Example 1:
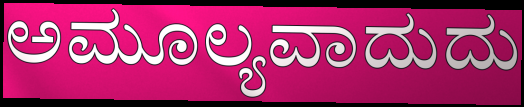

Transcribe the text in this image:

ಅಮೂಲ್ಯವಾದುದು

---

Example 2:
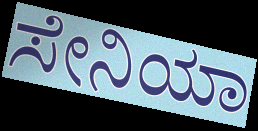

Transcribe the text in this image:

ಸೇನಿಯಾ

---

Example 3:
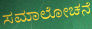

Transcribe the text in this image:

ಸಮಾಲೋಚನೆ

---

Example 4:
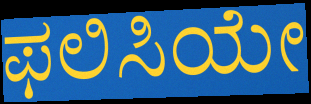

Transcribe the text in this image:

ಫಲಿಸಿಯೇ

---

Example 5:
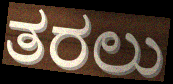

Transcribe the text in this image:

ತರಲು